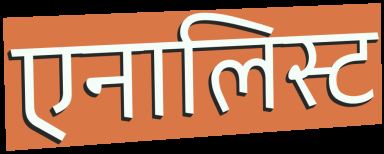
एनालिस्ट